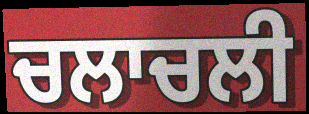
ਚਲਾਚਲੀ